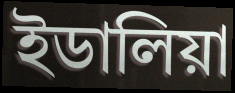
ইডালিয়া